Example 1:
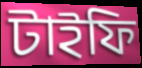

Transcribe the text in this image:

টাইফি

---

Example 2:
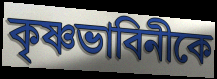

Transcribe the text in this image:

কৃষ্ণভাবিনীকে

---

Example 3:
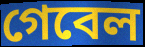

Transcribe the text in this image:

গেবেল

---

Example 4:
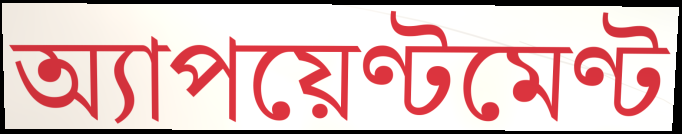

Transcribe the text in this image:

অ্যাপয়েণ্টমেণ্ট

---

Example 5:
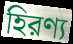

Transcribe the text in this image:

হিরণ্য